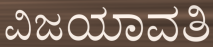
ವಿಜಯಾವತಿ